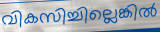
വികസിച്ചില്ലെങ്കിൽ